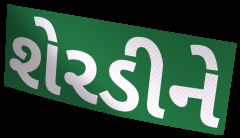
શેરડીને